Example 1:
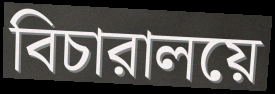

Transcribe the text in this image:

বিচারালয়ে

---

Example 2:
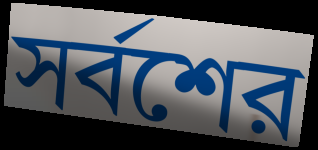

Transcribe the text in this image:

সর্বশের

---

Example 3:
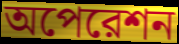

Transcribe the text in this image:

অপেরেশন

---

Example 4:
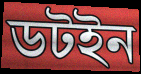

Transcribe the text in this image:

ডটইন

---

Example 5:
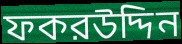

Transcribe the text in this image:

ফকরউদ্দিন